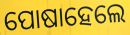
ପୋଷାହେଲେ